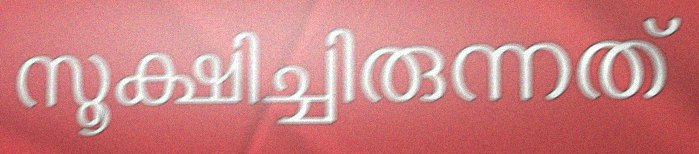
സൂക്ഷിച്ചിരുന്നത്